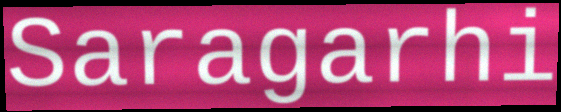
Saragarhi